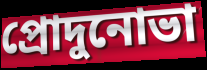
প্রোদুনোভা